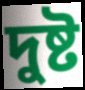
দুষ্ট